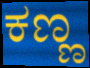
ಕಣ್ಣ